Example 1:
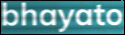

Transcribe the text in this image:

bhayato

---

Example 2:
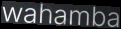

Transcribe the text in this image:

wahamba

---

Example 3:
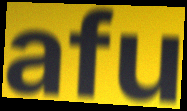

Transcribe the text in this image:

afu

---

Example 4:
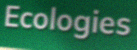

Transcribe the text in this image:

Ecologies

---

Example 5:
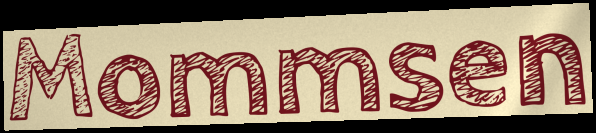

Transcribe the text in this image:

Mommsen